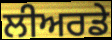
ਲੀਅਰਡੇ